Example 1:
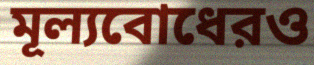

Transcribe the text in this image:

মূল্যবোধেরও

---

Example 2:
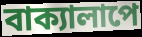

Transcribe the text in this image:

বাক্যালাপে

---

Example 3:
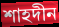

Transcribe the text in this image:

শাহদীন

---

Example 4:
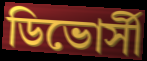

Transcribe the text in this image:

ডিভোর্সী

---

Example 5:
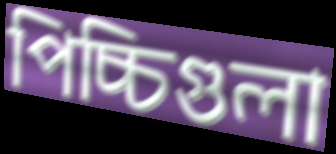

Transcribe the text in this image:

পিচ্চিগুলা